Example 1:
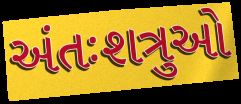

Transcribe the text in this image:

અંતઃશત્રુઓ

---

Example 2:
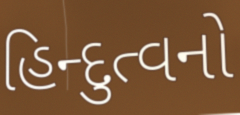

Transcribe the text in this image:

હિન્દુત્વનો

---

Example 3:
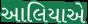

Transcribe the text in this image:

આલિયાએ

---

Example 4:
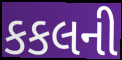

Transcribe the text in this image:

કકલની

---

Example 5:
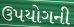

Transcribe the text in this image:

ઉપયોગની